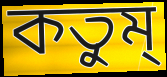
কতুম্